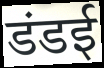
डंडई